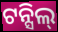
ଟନ୍ସିଲ୍